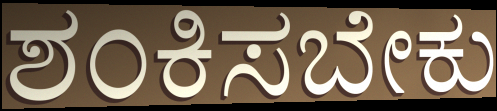
ಶಂಕಿಸಬೇಕು